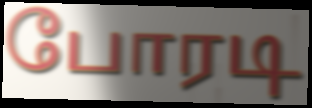
போரடி